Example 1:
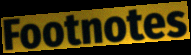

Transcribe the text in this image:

Footnotes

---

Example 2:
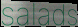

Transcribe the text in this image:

salads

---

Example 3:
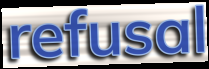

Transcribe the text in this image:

refusal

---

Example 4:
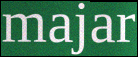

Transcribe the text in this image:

majar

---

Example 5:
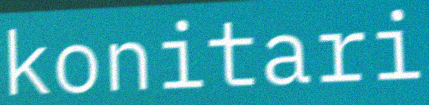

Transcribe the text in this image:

konitari